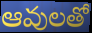
ఆవులతో